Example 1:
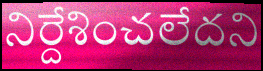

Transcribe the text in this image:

నిర్దేశించలేదని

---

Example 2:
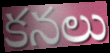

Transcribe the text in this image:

కనలు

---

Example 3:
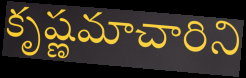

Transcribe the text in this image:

కృష్ణమాచారిని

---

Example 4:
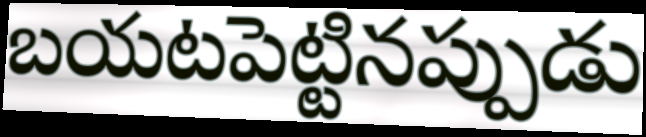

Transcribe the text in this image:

బయటపెట్టినప్పుడు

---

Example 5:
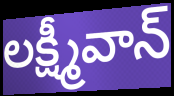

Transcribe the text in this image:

లక్ష్మీవాన్